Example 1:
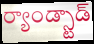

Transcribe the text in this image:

ర్యాండ్స్టాడ్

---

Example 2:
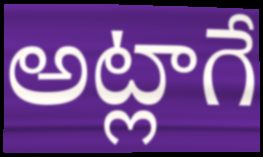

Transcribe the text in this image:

అట్లాగే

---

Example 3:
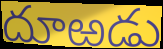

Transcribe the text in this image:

దూఱడు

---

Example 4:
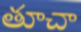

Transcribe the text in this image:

తూచా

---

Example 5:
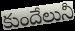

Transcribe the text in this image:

కుందేలునీ